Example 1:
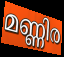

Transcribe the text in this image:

മണ്ണിര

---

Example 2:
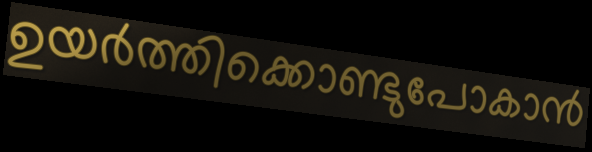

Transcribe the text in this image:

ഉയർത്തിക്കൊണ്ടുപോകാൻ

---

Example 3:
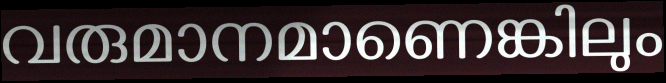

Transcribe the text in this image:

വരുമാനമാണെങ്കിലും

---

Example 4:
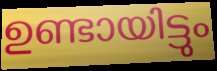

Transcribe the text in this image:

ഉണ്ടായിട്ടും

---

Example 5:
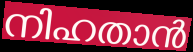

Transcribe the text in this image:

നിഹതാൻ